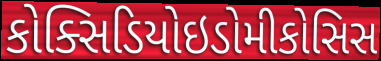
કોક્સિડિયોઇડોમીકોસિસ